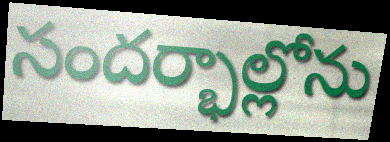
సందర్భాల్లోను